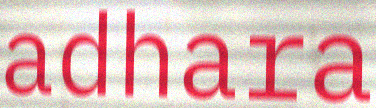
adhara